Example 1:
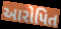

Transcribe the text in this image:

આરોપિત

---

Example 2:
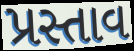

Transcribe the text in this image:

પ્રસ્તાવ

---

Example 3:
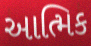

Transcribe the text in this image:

આત્મિક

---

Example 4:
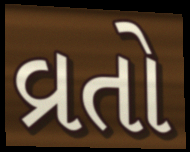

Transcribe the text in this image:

વ્રતો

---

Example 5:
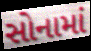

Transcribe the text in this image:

સોનામાં